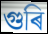
গুৰি